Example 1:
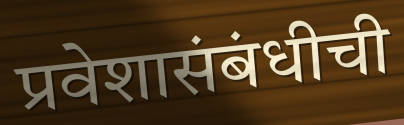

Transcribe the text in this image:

प्रवेशासंबंधीची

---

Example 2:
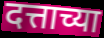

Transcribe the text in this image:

दत्ताच्या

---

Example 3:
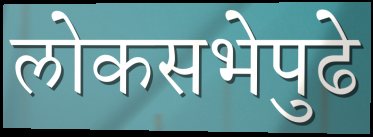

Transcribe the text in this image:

लोकसभेपुढे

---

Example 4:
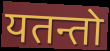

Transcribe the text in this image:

यतन्तो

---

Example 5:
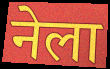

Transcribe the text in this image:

नेला